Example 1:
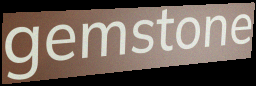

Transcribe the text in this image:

gemstone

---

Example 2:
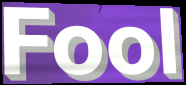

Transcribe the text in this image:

Fool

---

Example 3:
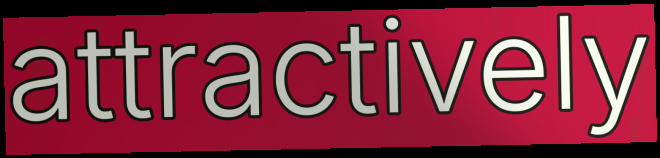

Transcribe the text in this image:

attractively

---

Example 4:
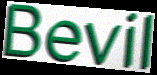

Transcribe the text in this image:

Bevil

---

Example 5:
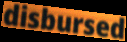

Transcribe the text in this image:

disbursed